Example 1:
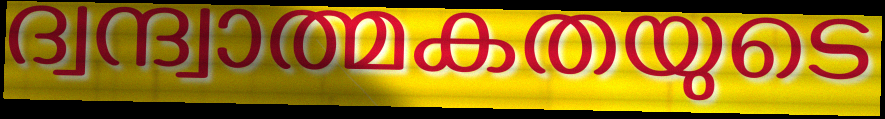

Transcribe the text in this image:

ദ്വന്ദ്വാത്മകതയുടെ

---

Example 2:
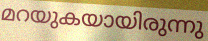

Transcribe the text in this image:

മറയുകയായിരുന്നു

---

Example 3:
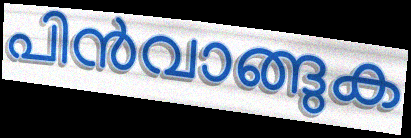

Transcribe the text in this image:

പിൻവാങ്ങുക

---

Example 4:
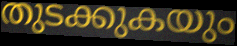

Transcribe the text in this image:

തുടക്കുകയും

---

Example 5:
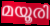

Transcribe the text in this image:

മയൂരി